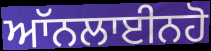
ਆੱਨਲਾਈਨਹੋ